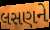
લસણને